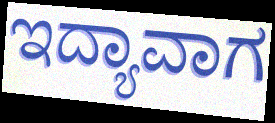
ಇದ್ಯಾವಾಗ